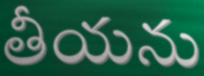
తీయను